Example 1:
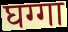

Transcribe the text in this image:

घग्गा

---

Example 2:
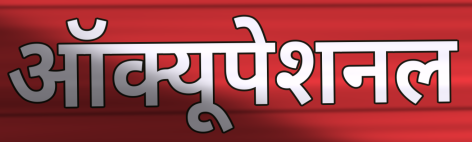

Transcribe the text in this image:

ऑक्यूपेशनल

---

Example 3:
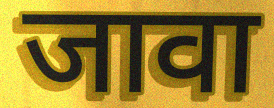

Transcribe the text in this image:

जावा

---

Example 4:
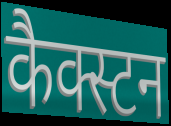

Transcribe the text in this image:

कैक्स्टन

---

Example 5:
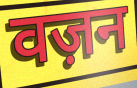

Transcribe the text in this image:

वज़न